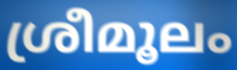
ശ്രീമൂലം